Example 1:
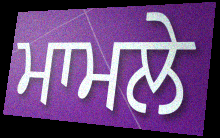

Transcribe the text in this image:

ਮਾਮਲੇ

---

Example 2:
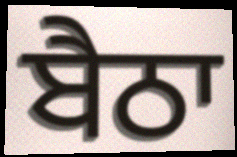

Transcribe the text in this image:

ਬੈਠਾ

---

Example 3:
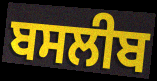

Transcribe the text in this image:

ਬਸਲੀਬ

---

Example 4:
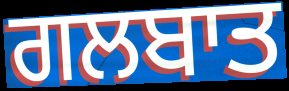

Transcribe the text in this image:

ਗਲਬਾਤ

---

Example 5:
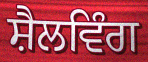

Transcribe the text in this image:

ਸ਼ੈਲਵਿੰਗ